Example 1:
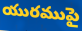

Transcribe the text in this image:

యురముపై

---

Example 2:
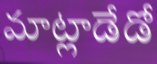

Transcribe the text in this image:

మాట్లాడేడో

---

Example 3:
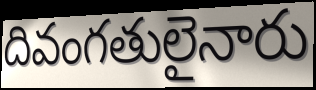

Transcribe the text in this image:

దివంగతులైనారు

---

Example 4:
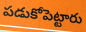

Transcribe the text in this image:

పడుకోపెట్టారు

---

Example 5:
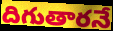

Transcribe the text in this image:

దిగుతారనే